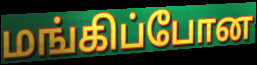
மங்கிப்போன